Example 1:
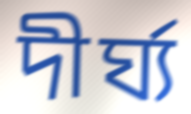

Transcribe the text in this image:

দীর্ঘ্য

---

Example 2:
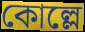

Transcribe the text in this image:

কোল্লে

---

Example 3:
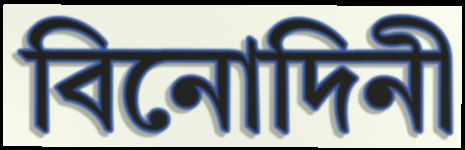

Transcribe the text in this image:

বিনোদিনী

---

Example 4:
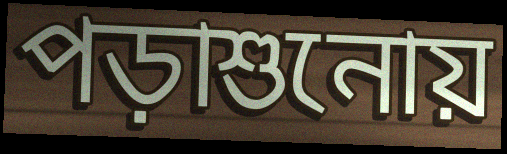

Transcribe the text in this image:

পড়াশুনোয়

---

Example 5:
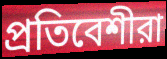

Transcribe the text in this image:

প্রতিবেশীরা